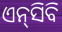
ଏନ୍‌ସିବି